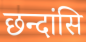
छन्दांसि